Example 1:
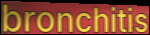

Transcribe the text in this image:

bronchitis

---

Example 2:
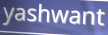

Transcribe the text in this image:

yashwant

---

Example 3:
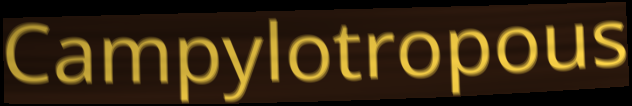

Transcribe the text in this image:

Campylotropous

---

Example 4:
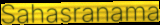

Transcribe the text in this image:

Sahasranama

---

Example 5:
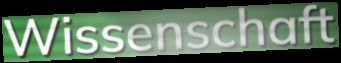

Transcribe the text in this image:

Wissenschaft